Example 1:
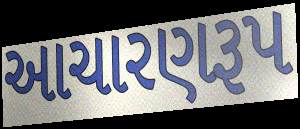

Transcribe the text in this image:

આચારણરૂપ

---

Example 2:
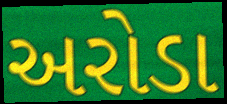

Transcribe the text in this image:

અરોડા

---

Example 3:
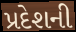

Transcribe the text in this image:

પ્રદેશની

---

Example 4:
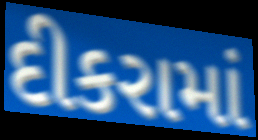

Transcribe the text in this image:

દીકરામાં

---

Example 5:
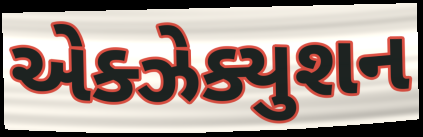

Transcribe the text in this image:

એક્ઝેક્યુશન